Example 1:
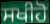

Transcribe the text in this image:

ਸਖੀਹੋ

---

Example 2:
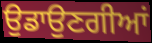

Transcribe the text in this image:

ਉਡਾਉਣਗੀਆਂ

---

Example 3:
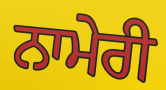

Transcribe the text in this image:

ਨਾਮੇਰੀ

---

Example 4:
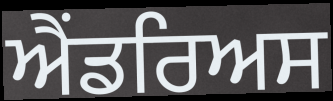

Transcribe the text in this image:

ਐਂਡਰਿਅਸ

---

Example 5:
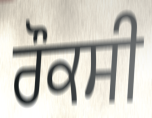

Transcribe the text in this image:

ਰੌਕਸੀ